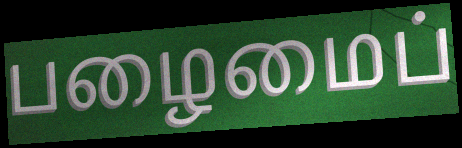
பழைமைப்